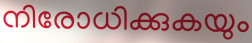
നിരോധിക്കുകയും